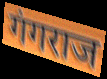
गंगराज